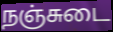
நஞ்சுடை